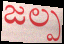
జల్ప